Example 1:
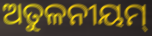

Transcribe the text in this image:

ଅତୁଳନୀୟମ୍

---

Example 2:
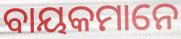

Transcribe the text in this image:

ବାୟକମାନେ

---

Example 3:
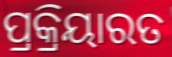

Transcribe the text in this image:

ପ୍ରକ୍ରିୟାରତ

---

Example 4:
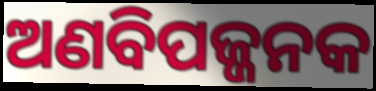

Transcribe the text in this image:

ଅଣବିପଜ୍ଜନକ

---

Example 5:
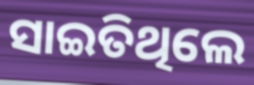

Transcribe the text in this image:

ସାଇତିଥିଲେ